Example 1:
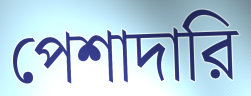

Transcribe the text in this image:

পেশাদারি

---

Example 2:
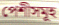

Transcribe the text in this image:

পেশীসমূহ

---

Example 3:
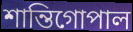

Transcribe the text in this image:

শান্তিগোপাল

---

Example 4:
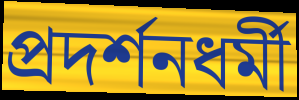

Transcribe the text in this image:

প্রদর্শনধর্মী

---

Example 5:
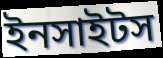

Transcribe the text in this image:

ইনসাইটস